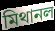
মিথানল